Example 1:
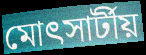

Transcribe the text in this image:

মোৎসার্টীয়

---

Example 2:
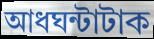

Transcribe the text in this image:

আধঘন্টাটাক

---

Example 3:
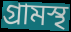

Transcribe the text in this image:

গ্রামস্থ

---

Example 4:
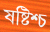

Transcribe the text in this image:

ষষ্টিশ্চ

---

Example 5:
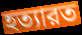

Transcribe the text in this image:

হত্যারত